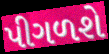
પીગળશે